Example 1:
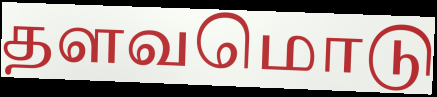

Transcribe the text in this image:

தளவமொடு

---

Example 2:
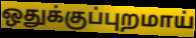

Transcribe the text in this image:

ஒதுக்குப்புறமாய்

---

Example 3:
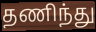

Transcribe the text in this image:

தணிந்து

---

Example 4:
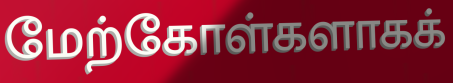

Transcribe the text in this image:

மேற்கோள்களாகக்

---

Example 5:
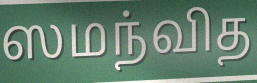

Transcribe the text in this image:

ஸமந்வித